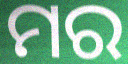
ମର